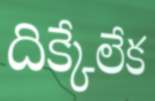
దిక్కేలేక